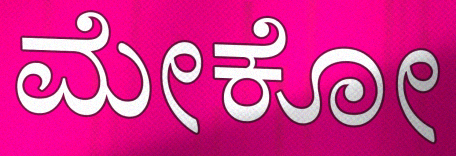
ಮೇಕೋ